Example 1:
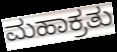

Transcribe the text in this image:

ಮಹಾಕ್ರತು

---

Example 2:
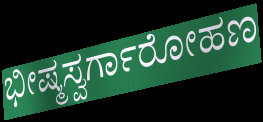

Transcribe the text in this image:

ಭೀಷ್ಮಸ್ವರ್ಗಾರೋಹಣ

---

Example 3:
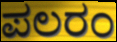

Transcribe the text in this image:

ಪಲರಂ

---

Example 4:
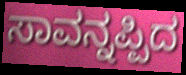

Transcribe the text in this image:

ಸಾವನ್ನಪ್ಪಿದ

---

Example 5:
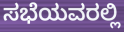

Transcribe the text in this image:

ಸಭೆಯವರಲ್ಲಿ